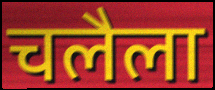
चलैला